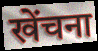
खेंचना